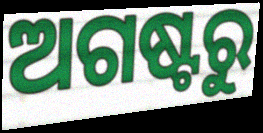
ଅଗଷ୍ଟରୁ